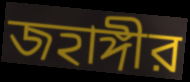
জহাঙ্গীর